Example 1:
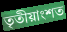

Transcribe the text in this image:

তৃতীয়াংশত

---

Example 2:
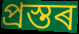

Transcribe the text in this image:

প্ৰস্তৰ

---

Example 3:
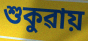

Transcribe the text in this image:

শুকুৱায়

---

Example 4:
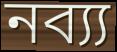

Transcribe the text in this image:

নব্য্য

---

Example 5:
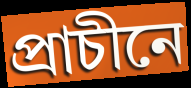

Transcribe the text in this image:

প্ৰাচীনে